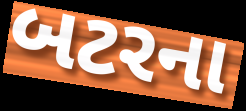
બટરના